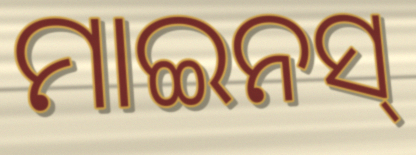
ମାଇନସ୍